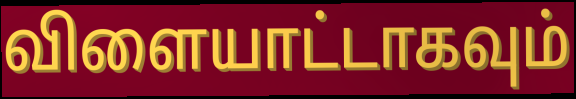
விளையாட்டாகவும்